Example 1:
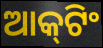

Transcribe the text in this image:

ଆକ୍‌ଟିଂ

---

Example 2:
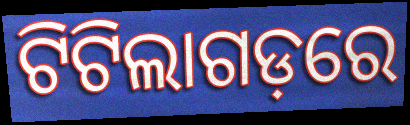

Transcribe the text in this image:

ଟିଟିଲାଗଡ଼ରେ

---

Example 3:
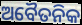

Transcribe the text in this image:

ଅବୈତନିକ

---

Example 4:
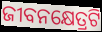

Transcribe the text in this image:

ଜୀବନକ୍ଷେତ୍ରଟି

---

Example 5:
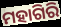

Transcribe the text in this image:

ମହାଗିରି